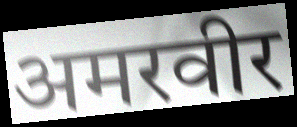
अमरवीर